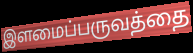
இளமைப்பருவத்தை